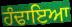
ਹੰਢਾਇਆ